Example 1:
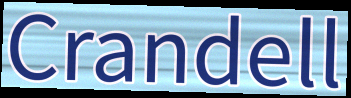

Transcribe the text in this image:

Crandell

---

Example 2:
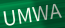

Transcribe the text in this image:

UMWA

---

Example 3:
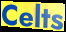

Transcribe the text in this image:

Celts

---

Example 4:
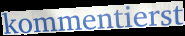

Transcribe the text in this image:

kommentierst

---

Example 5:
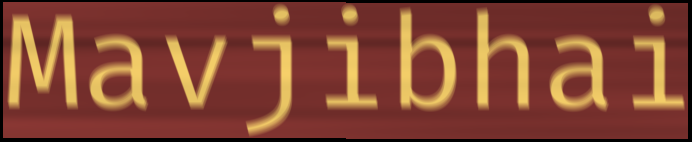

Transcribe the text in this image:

Mavjibhai